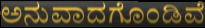
ಅನುವಾದಗೊಂಡಿವೆ